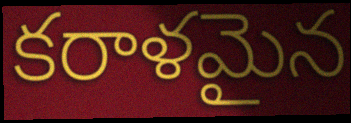
కరాళమైన